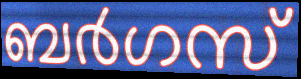
ബർഗസ്